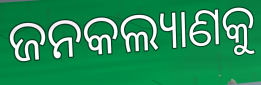
ଜନକଲ୍ୟାଣକୁ